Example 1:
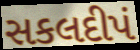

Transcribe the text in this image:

સકલદીપં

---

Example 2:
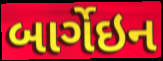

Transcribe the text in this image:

બાર્ગેઇન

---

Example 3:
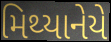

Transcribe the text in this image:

મિથ્યાનેયે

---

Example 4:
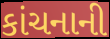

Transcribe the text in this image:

કાંચનાની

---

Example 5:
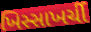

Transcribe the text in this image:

ખિસ્સાખર્ચી